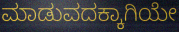
ಮಾಡುವದಕ್ಕಾಗಿಯೇ